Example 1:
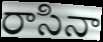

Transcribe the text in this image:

రాసినా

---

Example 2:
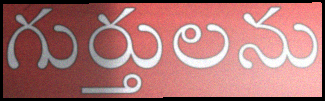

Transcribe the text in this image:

గుర్తులను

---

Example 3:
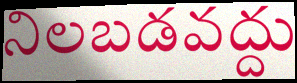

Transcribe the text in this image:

నిలబడవద్దు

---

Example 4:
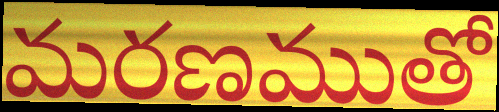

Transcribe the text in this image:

మరణముతో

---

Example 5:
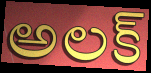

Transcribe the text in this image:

అలక్